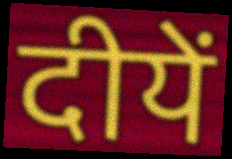
दीयें